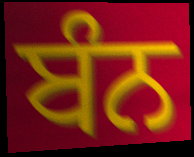
ਬੰਨ